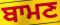
ਬਾਮਣ